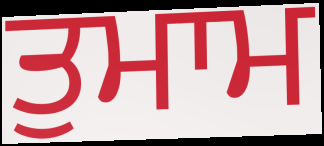
ਤੁਮਾਮ